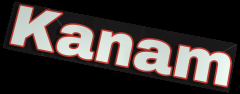
Kanam